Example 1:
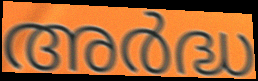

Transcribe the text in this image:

അർദ്ധ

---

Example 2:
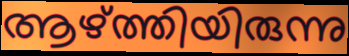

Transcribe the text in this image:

ആഴ്ത്തിയിരുന്നു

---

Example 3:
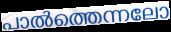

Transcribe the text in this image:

പാൽത്തെന്നലോ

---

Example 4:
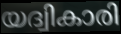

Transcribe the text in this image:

യദ്വികാരി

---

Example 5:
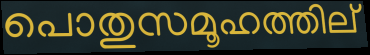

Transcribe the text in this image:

പൊതുസമൂഹത്തില്